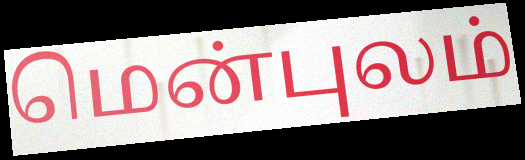
மென்புலம்